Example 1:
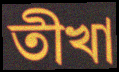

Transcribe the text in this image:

তীখা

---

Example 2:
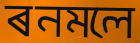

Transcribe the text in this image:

ৰনমলে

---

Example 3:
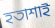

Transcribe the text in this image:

হতাশাই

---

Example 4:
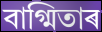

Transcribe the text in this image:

বাগ্মিতাৰ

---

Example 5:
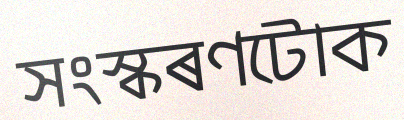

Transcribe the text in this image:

সংস্কৰণটোক